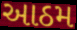
આઠમ